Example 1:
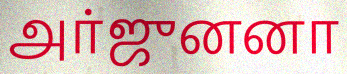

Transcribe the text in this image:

அர்ஜுனனா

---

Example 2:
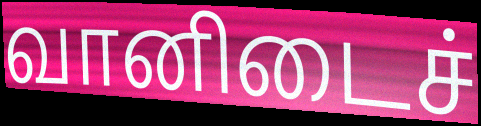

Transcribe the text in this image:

வானிடைச்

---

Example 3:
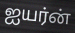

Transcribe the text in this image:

ஐயர்ன்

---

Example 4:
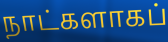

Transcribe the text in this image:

நாட்களாகப்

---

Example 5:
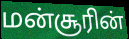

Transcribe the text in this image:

மன்சூரின்